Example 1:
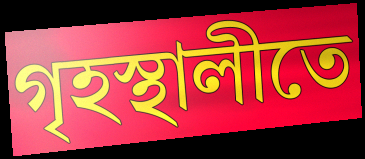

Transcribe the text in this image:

গৃহস্থালীতে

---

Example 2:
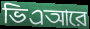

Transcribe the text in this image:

ভিএআরে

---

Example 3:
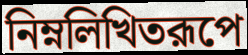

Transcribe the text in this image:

নিম্নলিখিতরূপে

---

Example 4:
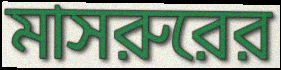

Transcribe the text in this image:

মাসরুরের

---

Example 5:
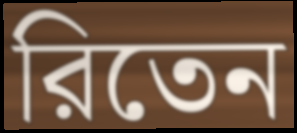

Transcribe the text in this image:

রিতেন